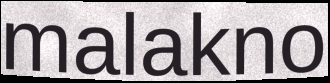
malakno